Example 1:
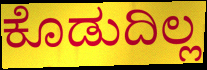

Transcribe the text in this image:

ಕೊಡುದಿಲ್ಲ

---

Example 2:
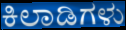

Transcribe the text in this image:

ಕಿಲಾಡಿಗಳು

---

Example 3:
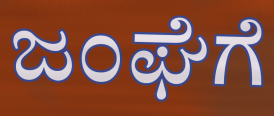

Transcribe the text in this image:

ಜಂಘೆಗೆ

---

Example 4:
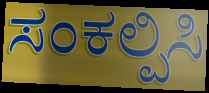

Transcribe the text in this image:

ಸಂಕಲ್ಪಿಸಿ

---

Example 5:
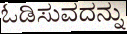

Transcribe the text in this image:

ಓಡಿಸುವದನ್ನು